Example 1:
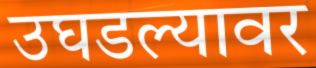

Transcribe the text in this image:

उघडल्यावर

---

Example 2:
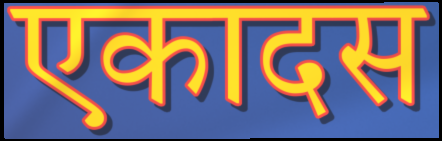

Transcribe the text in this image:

एकादस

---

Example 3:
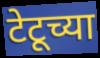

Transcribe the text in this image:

टेटूच्या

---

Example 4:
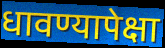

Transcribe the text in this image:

धावण्यापेक्षा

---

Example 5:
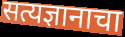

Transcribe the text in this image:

सत्यज्ञानाचा